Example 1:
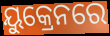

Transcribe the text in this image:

ୟୁକ୍ରେନରେ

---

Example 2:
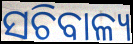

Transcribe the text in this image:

ସଚିବାଳ୍ୟ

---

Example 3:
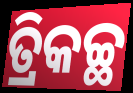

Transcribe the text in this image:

ତ୍ରିକଚ୍ଛ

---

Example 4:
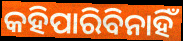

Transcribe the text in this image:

କହିପାରିବିନାହିଁ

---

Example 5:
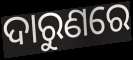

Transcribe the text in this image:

ଦାରୁଣରେ